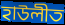
হাউলীত